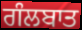
ਗੰਲਬਾਤ